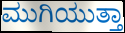
ಮುಗಿಯುತ್ತಾ